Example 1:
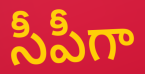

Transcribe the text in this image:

సీపీగా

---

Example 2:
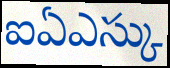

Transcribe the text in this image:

ఐఏఎస్కు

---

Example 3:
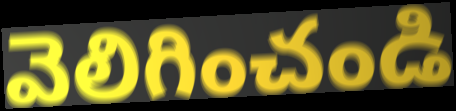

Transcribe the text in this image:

వెలిగించండి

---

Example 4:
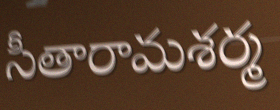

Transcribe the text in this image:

సీతారామశర్మ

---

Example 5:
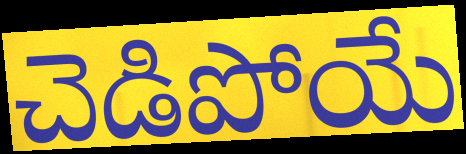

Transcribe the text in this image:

చెడిపోయే